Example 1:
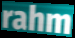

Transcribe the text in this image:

rahm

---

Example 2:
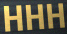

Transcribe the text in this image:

HHH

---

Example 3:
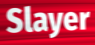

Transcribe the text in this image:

Slayer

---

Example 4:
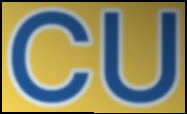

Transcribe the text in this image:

CU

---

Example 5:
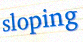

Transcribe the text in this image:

sloping